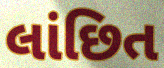
લાંછિત